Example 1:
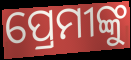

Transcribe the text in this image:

ପ୍ରେମୀଙ୍କୁ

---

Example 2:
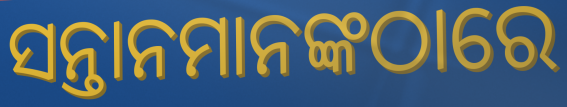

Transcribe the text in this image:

ସନ୍ତାନମାନଙ୍କଠାରେ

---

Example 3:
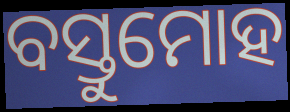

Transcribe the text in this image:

ବସ୍ତୁମୋହ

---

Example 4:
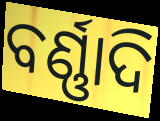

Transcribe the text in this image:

ବର୍ଣ୍ଣାଦି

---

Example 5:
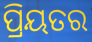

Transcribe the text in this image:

ପ୍ରିୟତର